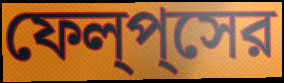
ফেল্‌প্‌সের